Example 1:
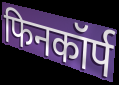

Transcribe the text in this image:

फिनकॉर्प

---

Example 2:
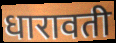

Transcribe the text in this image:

धारावती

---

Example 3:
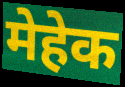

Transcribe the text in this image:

मेहेक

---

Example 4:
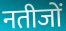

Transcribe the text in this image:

नतीजों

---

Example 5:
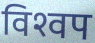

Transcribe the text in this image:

विश्वप